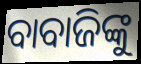
ବାବାଜିଙ୍କୁ